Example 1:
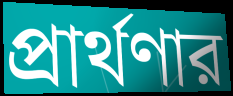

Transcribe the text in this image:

প্রার্থণার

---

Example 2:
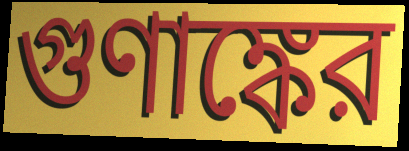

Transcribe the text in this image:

গুণাঙ্কের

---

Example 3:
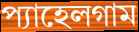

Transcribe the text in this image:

প্যাহেলগাম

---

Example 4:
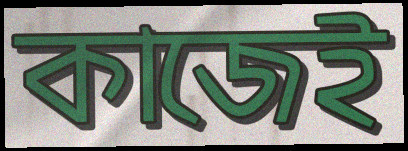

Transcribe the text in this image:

কাজেই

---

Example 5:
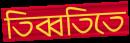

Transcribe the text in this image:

তিব্বতিতে